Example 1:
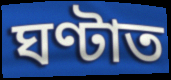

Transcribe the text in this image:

ঘণ্টাত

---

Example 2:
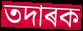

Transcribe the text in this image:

তদাৰক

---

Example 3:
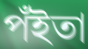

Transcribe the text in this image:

পঁইতা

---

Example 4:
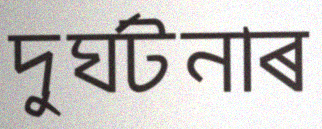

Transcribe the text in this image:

দুৰ্ঘটনাৰ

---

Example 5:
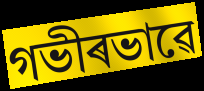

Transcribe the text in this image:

গভীৰভাৱে